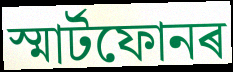
স্মাৰ্টফোনৰ